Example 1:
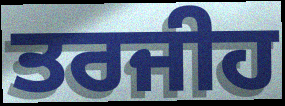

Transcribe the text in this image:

ਤਰਜੀਹ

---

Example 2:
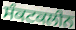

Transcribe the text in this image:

ਸੰਕਟਕਲੀਨ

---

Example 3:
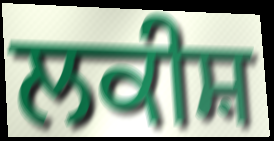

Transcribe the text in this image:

ਲਕੀਸ਼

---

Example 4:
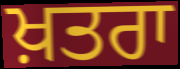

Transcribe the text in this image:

ਖ਼ਤਰਾ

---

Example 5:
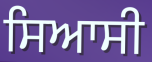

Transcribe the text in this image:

ਸਿਆਸੀ